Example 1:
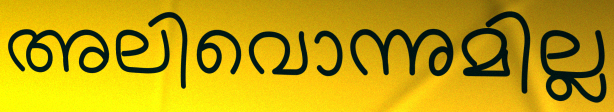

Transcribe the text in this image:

അലിവൊന്നുമില്ല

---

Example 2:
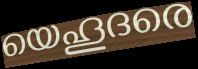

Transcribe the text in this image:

യെഹൂദരെ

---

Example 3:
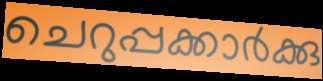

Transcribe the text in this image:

ചെറുപ്പക്കാർക്കു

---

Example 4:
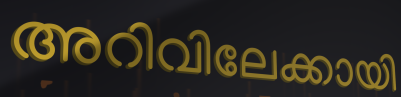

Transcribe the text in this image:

അറിവിലേക്കായി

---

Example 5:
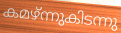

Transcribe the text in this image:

കമഴ്ന്നുകിടന്നു